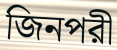
জিনপরী